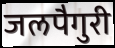
जलपैगुरी